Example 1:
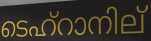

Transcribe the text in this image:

ടെഹ്റാനില്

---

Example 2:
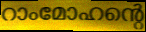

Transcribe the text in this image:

റാംമോഹന്റെ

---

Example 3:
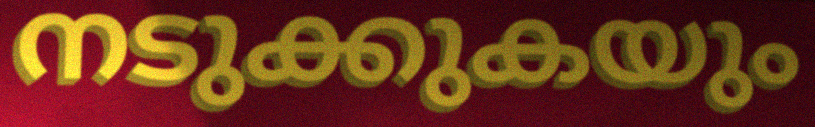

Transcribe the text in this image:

നടുക്കുകയും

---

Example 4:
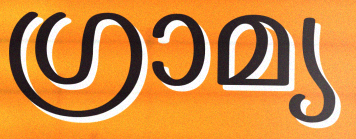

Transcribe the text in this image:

ഗ്രാമ്യ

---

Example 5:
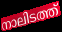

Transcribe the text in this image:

നാലിടത്ത്